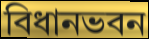
বিধানভবন